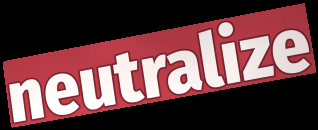
neutralize